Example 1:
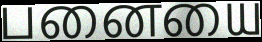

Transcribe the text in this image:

பனையை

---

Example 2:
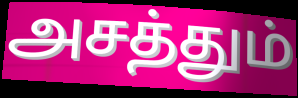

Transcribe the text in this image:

அசத்தும்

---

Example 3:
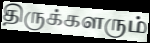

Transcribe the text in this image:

திருக்களரும்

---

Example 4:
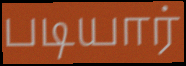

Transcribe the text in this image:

படியார்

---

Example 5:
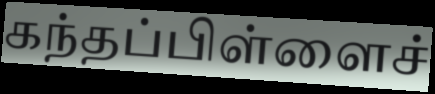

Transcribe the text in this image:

கந்தப்பிள்ளைச்